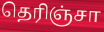
தெரிஞ்சா